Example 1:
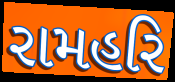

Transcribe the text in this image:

રામહરિ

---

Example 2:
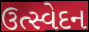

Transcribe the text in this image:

ઉત્સ્વેદન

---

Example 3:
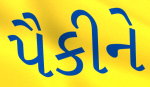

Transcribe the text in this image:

પૈકીને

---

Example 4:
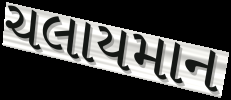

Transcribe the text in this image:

ચલાયમાન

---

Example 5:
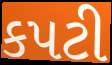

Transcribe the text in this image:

કપટી